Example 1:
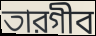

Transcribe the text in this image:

তারগীব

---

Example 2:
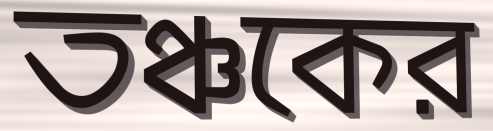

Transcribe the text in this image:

তঞ্চকের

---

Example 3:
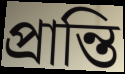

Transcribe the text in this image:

প্রান্তি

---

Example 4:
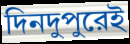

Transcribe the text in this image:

দিনদুপুরেই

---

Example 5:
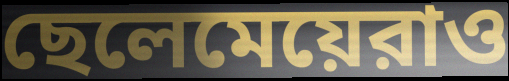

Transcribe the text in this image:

ছেলেমেয়েরাও